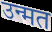
उन्मत